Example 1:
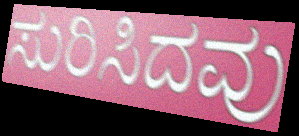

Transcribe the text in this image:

ಸುರಿಸಿದವು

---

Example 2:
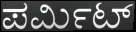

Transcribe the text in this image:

ಪರ್ಮಿಟ್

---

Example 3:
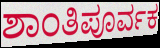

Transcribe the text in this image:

ಶಾಂತಿಪೂರ್ವಕ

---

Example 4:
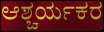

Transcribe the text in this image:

ಆಶ್ಚರ್ಯಕರ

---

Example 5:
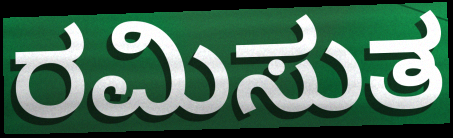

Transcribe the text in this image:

ರಮಿಸುತ